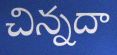
చిన్నదా